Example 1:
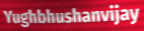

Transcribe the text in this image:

Yughbhushanvijay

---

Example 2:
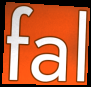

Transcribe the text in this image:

fal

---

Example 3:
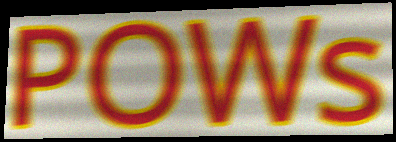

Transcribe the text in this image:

POWs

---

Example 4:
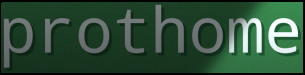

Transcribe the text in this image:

prothome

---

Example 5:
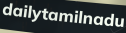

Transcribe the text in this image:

dailytamilnadu